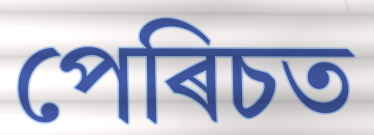
পেৰিচত